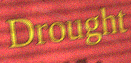
Drought